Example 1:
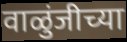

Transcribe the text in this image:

वाळुंजीच्या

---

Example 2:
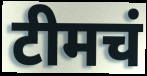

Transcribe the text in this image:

टीमचं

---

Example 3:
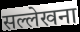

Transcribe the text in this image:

सल्लेखना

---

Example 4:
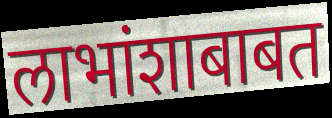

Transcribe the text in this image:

लाभांशाबाबत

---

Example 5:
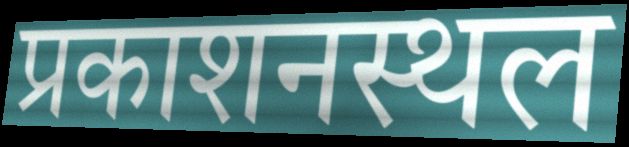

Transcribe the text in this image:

प्रकाशनस्थल